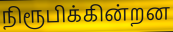
நிரூபிக்கின்றன